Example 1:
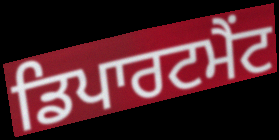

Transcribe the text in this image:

ਡਿਪਾਰਟਮੈਂਟ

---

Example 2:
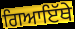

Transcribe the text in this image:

ਗਿਆਇੱਥੇ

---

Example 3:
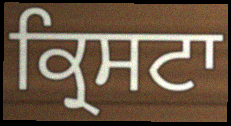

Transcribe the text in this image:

ਕ੍ਰਿਸਟਾ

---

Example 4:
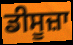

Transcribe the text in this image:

ਡੀਸੂਜ਼ਾ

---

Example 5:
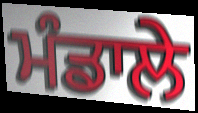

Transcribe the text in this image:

ਮੰਡਾਲੇ